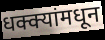
धक्क्यांमधून